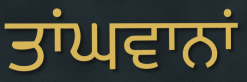
ਤਾਂਘਵਾਨਾਂ